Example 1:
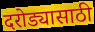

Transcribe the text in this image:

दरोड्यासाठी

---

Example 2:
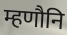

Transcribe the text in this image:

म्हणौनि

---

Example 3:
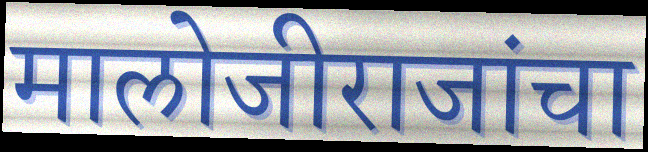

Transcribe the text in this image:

मालोजीराजांचा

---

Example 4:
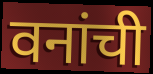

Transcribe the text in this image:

वनांची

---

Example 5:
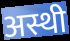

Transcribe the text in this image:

अस्थी